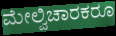
ಮೇಲ್ವಿಚಾರಕರೂ